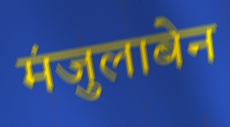
मंजुलाबेन